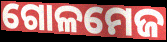
ଗୋଳମେଜ